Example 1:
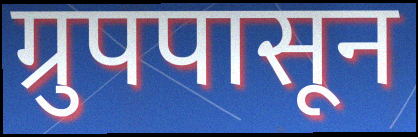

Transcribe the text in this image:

ग्रुपपासून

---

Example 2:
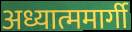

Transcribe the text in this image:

अध्यात्ममार्गी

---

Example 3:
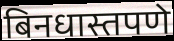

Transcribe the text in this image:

बिनधास्तपणे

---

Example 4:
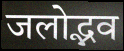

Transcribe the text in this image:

जलोद्भव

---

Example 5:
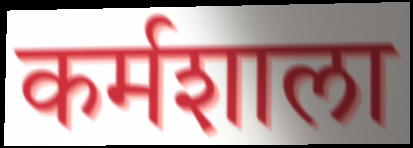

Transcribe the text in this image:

कर्मशाला